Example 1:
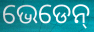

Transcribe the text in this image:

ଭେଡେନ୍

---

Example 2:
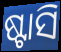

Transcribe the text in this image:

ଷ୍ଟାସି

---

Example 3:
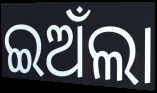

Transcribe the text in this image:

ଇଅଁଲା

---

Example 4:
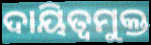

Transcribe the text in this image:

ଦାୟିତ୍ୱମୁକ୍ତ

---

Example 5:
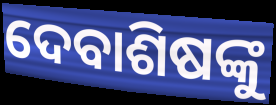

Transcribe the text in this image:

ଦେବାଶିଷଙ୍କୁ